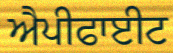
ਐਪੀਫਾਈਟ